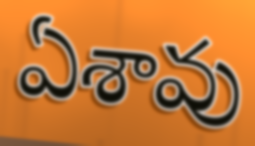
ఏశావు